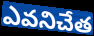
ఎవనిచేత